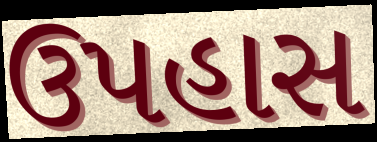
ઉપહાસ